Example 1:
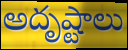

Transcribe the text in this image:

అదృష్టాలు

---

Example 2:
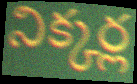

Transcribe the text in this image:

నిక్కర్ల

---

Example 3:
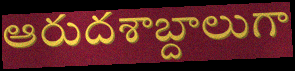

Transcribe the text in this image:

ఆరుదశాబ్దాలుగా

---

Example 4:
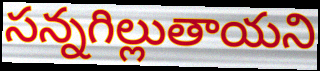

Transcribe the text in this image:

సన్నగిల్లుతాయని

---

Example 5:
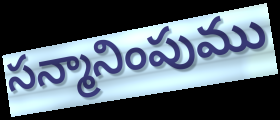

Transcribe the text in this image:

సన్మానింపుము